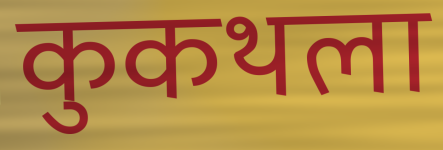
कुकथला